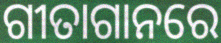
ଗୀତାଗାନରେ